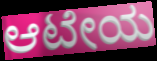
ಆಟೇಯ